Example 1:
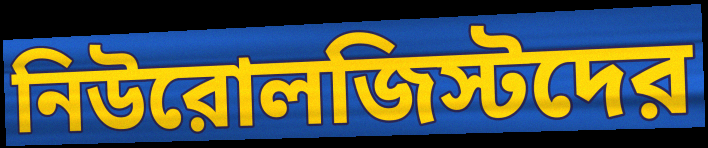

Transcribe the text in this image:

নিউরোলজিস্টদের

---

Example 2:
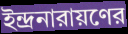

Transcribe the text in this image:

ইন্দ্রনারায়ণের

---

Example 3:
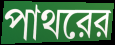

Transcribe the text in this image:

পাথরের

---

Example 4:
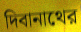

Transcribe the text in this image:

দিবানাথের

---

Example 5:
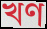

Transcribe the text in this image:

খণ